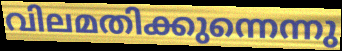
വിലമതിക്കുന്നെന്നു